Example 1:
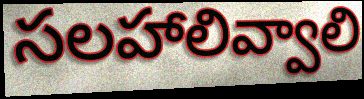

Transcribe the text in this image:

సలహాలివ్వాలి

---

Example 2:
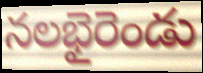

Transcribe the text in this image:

నలభైరెండు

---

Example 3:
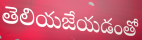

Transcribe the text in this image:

తెలియజేయడంతో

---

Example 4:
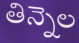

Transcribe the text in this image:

తిన్నెల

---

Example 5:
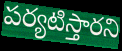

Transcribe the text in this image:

పర్యటిస్తారని